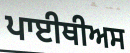
ਪਾਈਥੀਅਸ